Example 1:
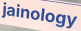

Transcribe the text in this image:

jainology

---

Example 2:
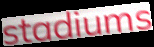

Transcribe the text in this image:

stadiums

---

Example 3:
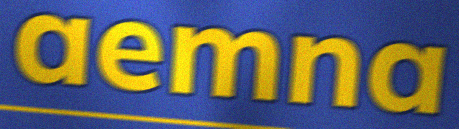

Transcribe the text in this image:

aemna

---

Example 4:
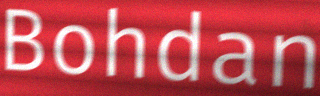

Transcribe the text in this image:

Bohdan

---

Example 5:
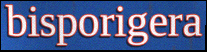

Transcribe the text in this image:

bisporigera